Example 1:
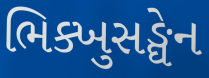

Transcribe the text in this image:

ભિક્ખુસઙ્ઘેન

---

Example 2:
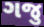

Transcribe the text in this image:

ગજુ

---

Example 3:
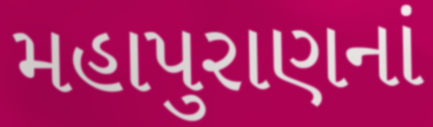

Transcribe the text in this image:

મહાપુરાણનાં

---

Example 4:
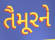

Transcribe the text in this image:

તૈમૂરને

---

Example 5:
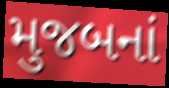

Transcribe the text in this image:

મુજબનાં